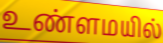
உண்ளமயில்